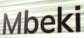
Mbeki